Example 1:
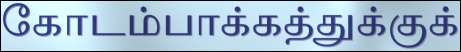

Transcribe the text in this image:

கோடம்பாக்கத்துக்குக்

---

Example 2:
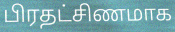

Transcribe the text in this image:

பிரதட்சிணமாக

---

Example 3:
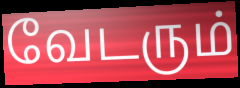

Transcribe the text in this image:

வேடரும்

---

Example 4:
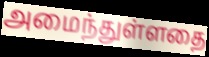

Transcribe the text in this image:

அமைந்துள்ளதை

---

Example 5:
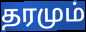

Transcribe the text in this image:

தரமும்